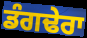
ਡੰਗਢੇਰਾ